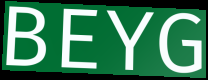
BEYG